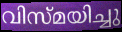
വിസ്മയിച്ചു